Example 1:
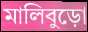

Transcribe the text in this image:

মালিবুড়ো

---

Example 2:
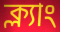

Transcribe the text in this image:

ক্ল্যাং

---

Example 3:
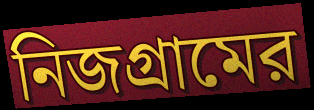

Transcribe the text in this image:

নিজগ্রামের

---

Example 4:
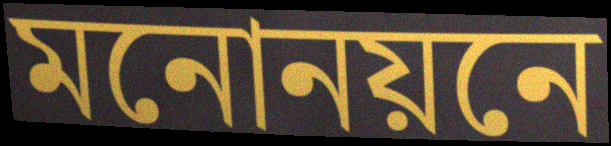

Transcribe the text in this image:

মনোনয়নে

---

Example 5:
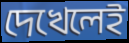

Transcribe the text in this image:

দেখেলেই